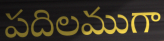
పదిలముగా